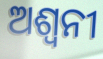
ଅଶ୍ୱନୀ